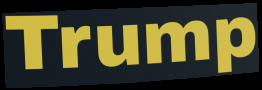
Trump